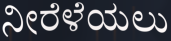
ನೀರೆಳೆಯಲು